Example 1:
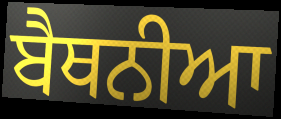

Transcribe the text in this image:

ਬੈਥਨੀਆ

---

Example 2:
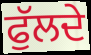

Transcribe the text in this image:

ਫੁੱਲਦੇ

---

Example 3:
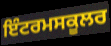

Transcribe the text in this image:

ਇੰਟਰਮਸਕੂਲਰ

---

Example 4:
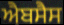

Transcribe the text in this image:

ਐਬਸੈਸ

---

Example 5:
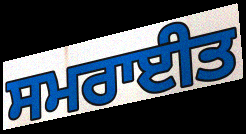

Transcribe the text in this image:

ਸਮਰਾਈਤ